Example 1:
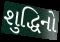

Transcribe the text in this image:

શુદ્ધિનો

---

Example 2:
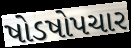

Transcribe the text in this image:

ષોડષોપચાર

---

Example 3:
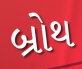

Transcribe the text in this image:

બ્રોથ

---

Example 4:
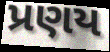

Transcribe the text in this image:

પ્રણય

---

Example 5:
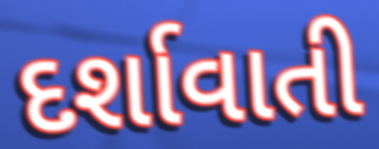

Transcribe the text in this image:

દર્શાવાતી